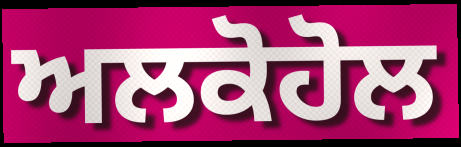
ਅਲਕੋਹੋਲ